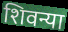
शिवन्या